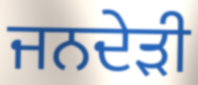
ਜਨਦੇੜੀ